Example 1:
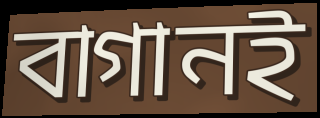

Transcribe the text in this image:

বাগানই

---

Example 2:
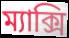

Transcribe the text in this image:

ম্যাক্সি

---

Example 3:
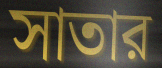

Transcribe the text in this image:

সাতার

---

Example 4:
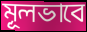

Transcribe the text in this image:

মূলভাবে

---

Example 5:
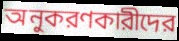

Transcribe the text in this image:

অনুকরণকারীদের